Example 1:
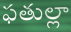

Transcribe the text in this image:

ఫతుల్లా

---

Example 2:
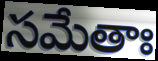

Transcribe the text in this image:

సమేతాః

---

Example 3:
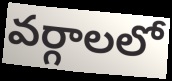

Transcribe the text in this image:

వర్గాలలో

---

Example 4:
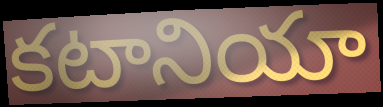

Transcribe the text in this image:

కటానియా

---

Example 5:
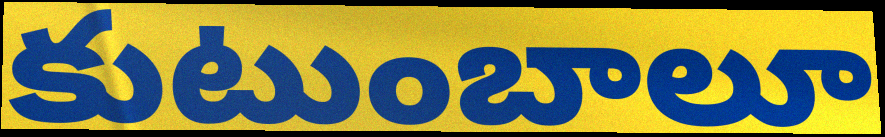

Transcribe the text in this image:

కుటుంబాలూ